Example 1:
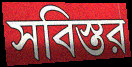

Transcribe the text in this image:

সবিস্তর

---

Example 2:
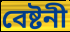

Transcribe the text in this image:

বেষ্টনী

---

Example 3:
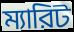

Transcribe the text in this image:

ম্যারিট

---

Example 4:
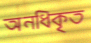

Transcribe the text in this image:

অনধিকৃত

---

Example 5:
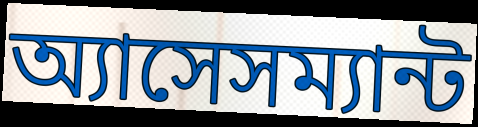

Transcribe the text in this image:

অ্যাসেসম্যান্ট